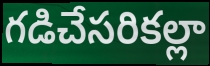
గడిచేసరికల్లా